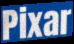
Pixar